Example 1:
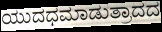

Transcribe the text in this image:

ಯುದಧಮಾಡುತ್ರಾದದ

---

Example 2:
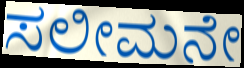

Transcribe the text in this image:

ಸಲೀಮನೇ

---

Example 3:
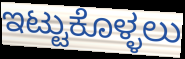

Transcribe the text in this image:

ಇಟ್ಟುಕೊಳ್ಳಲು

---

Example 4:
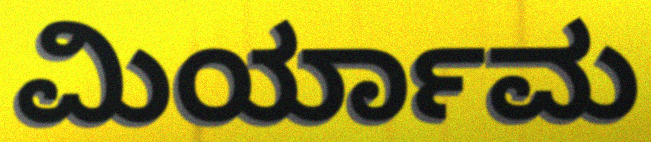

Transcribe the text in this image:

ಮಿರ್ಯಾಮ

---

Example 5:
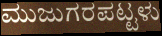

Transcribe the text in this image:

ಮುಜುಗರಪಟ್ಟಳು